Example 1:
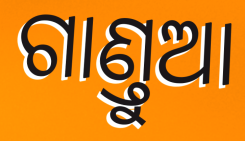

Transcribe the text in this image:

ଗାଣ୍ତୁଆ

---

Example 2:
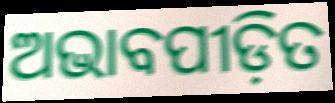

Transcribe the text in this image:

ଅଭାବପୀଡ଼ିତ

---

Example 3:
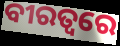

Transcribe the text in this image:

ବୀରତ୍ୱରେ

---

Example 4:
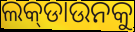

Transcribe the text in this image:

ଲକ୍‌ଡାଉନକୁ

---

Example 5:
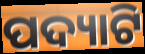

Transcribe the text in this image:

ପଦ୍ୟାଟି